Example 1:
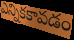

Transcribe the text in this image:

ఎన్నికకావడం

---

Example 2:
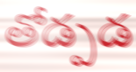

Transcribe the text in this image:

తోడ్పడ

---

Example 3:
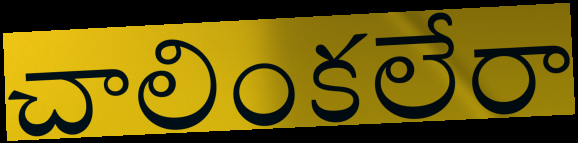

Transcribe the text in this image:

చాలింకలేరా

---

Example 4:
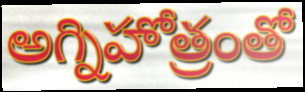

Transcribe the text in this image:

అగ్నిహోత్రంతో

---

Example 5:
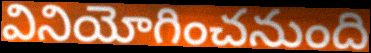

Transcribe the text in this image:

వినియోగించనుంది